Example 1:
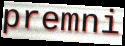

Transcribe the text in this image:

premni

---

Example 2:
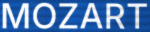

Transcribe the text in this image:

MOZART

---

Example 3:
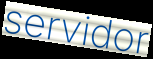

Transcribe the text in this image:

servidor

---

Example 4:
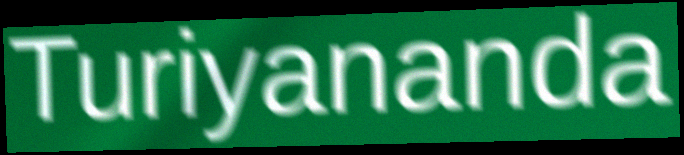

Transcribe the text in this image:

Turiyananda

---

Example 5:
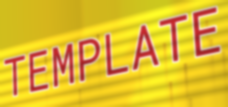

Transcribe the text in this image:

TEMPLATE